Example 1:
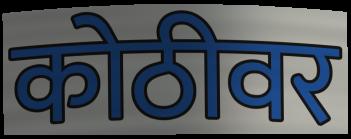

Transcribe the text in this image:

कोठीवर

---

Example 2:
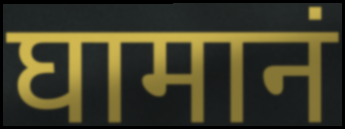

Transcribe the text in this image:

घामानं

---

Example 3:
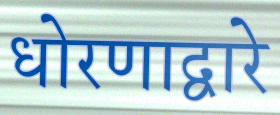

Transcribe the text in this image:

धोरणाद्वारे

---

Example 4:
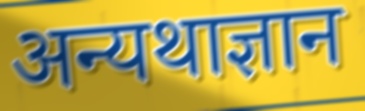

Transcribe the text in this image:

अन्यथाज्ञान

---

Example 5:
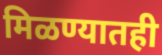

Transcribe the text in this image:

मिळण्यातही